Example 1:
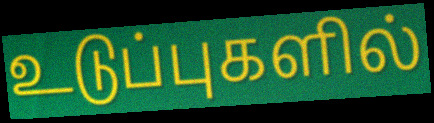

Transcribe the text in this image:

உடுப்புகளில்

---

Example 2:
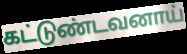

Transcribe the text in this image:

கட்டுண்டவனாய்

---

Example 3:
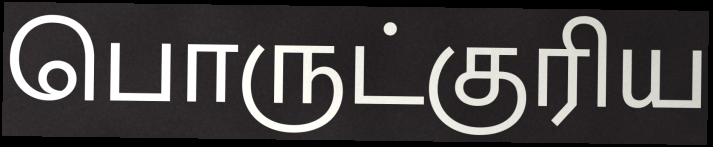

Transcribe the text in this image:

பொருட்குரிய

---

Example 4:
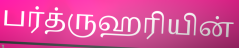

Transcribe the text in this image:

பர்த்ருஹரியின்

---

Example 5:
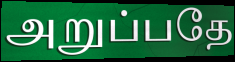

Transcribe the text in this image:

அறுப்பதே